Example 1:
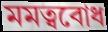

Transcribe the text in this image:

মমত্ববোধ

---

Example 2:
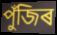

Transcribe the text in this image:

পুঁজিৰ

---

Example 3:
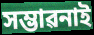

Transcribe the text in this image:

সম্ভাৱনাই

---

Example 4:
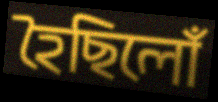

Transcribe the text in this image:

হৈছিলোঁ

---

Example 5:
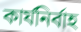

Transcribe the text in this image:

কাৰ্যনিৰ্বাহ